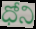
ధోని